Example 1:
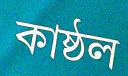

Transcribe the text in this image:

কাষ্ঠল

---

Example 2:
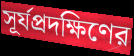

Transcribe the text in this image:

সূর্যপ্রদক্ষিণের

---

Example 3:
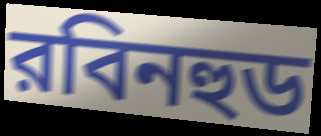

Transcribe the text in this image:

রবিনহুড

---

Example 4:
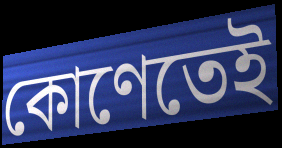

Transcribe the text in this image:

কোণেতেই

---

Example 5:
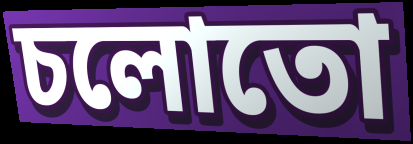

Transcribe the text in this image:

চলোতো